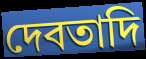
দেবতাদি